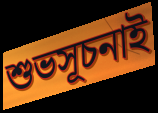
শুভসূচনাই